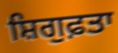
ਸ਼ਿਗੁਫ਼ਤਾ